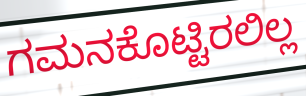
ಗಮನಕೊಟ್ಟಿರಲಿಲ್ಲ